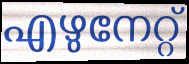
എഴുനേറ്റ്